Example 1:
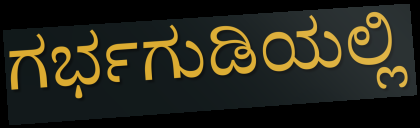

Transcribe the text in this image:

ಗರ್ಭಗುಡಿಯಲ್ಲಿ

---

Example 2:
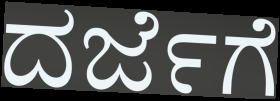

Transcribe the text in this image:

ದರ್ಜೆಗೆ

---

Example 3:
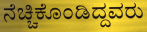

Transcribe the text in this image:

ನೆಚ್ಚಿಕೊಂಡಿದ್ದವರು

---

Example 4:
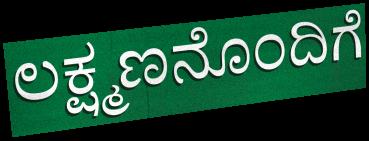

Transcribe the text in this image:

ಲಕ್ಷ್ಮಣನೊಂದಿಗೆ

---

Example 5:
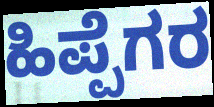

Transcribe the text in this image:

ಹಿಪ್ಪೆಗರ